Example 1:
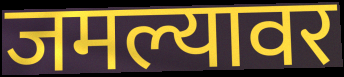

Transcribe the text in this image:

जमल्यावर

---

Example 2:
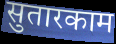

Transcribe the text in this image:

सुतारकाम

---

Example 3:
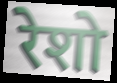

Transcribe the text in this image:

रेशो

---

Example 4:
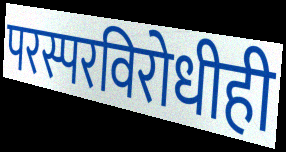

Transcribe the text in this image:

परस्परविरोधीही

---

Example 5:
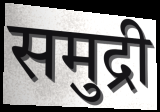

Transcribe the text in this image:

समुद्री